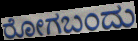
ರೋಗಬಂದು